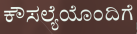
ಕೌಸಲ್ಯೆಯೊಂದಿಗೆ